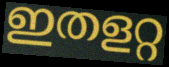
ഇതളറ്റ